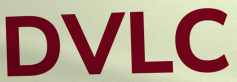
DVLC